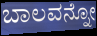
ಬಾಲವನ್ನೋ